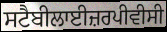
ਸਟੈਬੀਲਾਈਜ਼ਰਪੀਵੀਸੀ